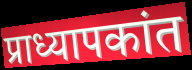
प्राध्यापकांत